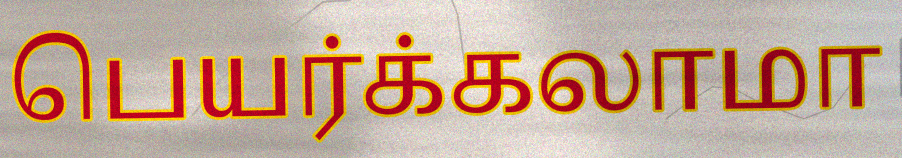
பெயர்க்கலாமா